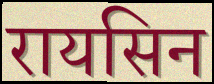
रायसिन